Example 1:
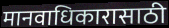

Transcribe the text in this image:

मानवाधिकारासाठी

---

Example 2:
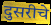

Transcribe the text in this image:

दुसरीचे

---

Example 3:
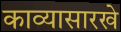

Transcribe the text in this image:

काव्यासारखे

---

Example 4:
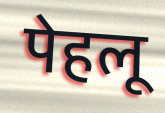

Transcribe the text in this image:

पेहलू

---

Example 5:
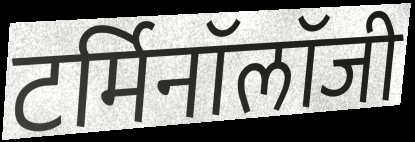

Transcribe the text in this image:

टर्मिनॉलॉजी